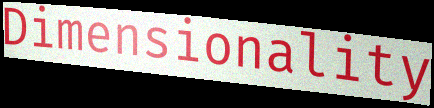
Dimensionality